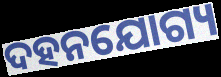
ଦହନଯୋଗ୍ୟ